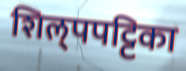
शिल्पपट्टिका